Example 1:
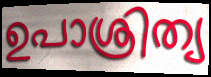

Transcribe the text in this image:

ഉപാശ്രിത്യ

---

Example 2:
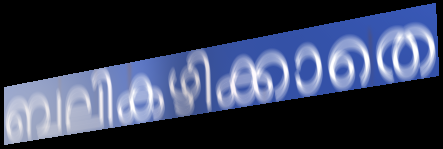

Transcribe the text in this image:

ബലികഴിക്കാതെ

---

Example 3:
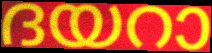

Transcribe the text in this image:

ദയറാ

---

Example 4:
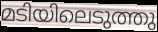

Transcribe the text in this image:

മടിയിലെടുത്തു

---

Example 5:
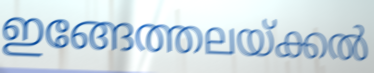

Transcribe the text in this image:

ഇങ്ങേത്തലയ്ക്കൽ